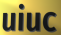
uiuc